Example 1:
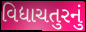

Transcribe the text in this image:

વિદ્યાચતુરનું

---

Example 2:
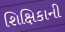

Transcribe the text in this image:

શિક્ષિકાની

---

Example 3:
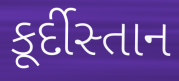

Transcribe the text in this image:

કૂર્દીસ્તાન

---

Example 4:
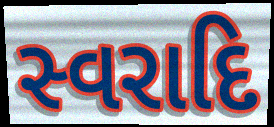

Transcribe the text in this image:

સ્વરાદિ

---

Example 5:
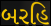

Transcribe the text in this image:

બરહિ